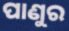
ପାଣୁର